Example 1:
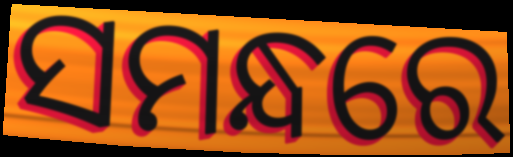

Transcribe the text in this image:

ସମନ୍ଧରେ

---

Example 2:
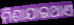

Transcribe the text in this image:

ମିଶାଯାଇଥାଏ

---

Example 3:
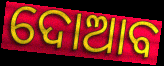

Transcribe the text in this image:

ଦୋଆବ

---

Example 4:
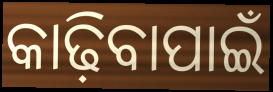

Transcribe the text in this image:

କାଢ଼ିବାପାଇଁ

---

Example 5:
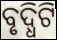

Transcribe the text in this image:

ବୃଦ୍ଧିଟି